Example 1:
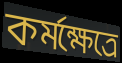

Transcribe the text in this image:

কর্মক্ষেত্রে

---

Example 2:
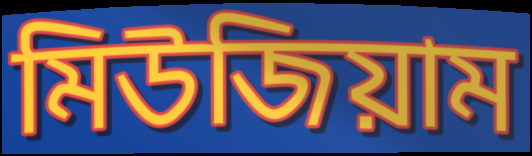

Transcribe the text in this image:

মিউজিয়াম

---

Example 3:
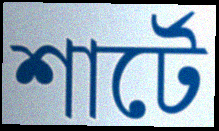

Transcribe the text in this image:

শার্টে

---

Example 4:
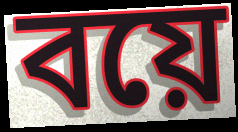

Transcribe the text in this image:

বয়ে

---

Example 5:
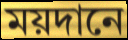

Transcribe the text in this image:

ময়দানে